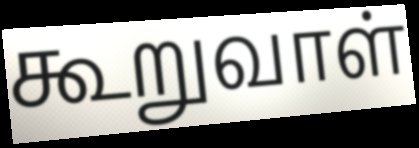
கூறுவாள்